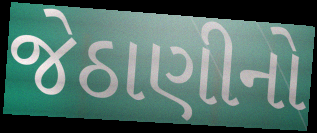
જેઠાણીનો